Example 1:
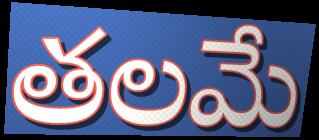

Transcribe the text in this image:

తలమే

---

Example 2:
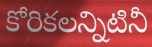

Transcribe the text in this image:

కోరికలన్నిటినీ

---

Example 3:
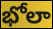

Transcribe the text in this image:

భోలా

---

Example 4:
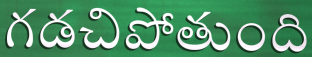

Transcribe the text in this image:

గడచిపోతుంది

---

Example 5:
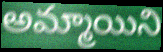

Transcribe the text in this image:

అమ్మాయిని